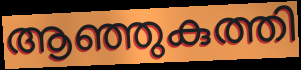
ആഞ്ഞുകുത്തി